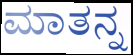
ಮಾತನ್ನ